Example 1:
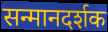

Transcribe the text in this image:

सन्मानदर्शक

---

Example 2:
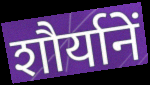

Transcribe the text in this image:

शौर्यानें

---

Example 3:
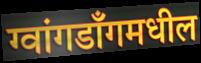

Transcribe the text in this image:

ग्वांगडाँगमधील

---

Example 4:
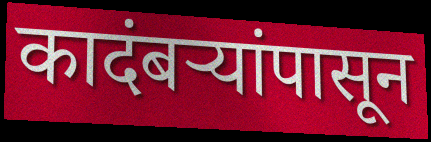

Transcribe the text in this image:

कादंबऱ्यांपासून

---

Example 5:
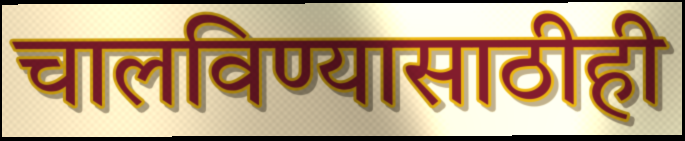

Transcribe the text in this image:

चालविण्यासाठीही